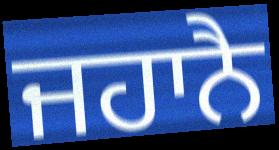
ਜਹਾਨੈ